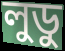
লুডু